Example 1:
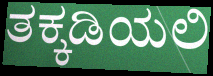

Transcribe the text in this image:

ತಕ್ಕಡಿಯಲಿ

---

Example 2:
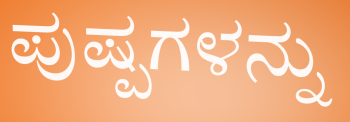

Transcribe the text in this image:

ಪುಷ್ಪಗಳನ್ನು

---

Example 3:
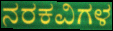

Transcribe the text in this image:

ನರಕವಿಗಳ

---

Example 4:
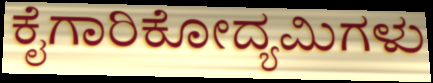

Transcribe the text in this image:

ಕೈಗಾರಿಕೋದ್ಯಮಿಗಳು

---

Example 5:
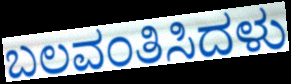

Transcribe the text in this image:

ಬಲವಂತಿಸಿದಳು